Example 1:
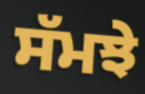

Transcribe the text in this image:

ਸੱਮਝੇ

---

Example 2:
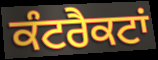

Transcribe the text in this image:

ਕੰਟਰੈਕਟਾਂ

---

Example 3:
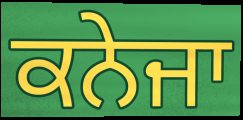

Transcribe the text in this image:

ਕਨੇਜਾ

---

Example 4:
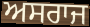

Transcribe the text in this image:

ਅਸਰਾਜ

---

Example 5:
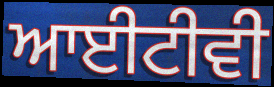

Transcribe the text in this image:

ਆਈਟੀਵੀ